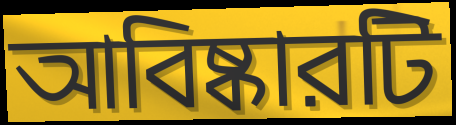
আবিষ্কারটি